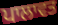
ਪਾਲਾਵਤ